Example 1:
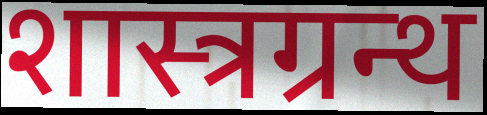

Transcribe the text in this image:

शास्त्रग्रन्थ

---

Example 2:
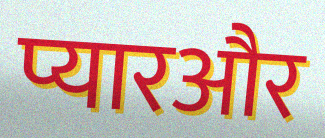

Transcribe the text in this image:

प्यारऔर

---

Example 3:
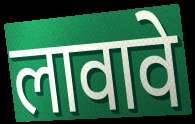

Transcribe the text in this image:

लावावे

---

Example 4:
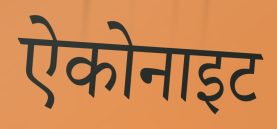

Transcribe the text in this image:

ऐकोनाइट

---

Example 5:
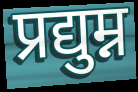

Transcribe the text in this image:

प्रद्युम्न